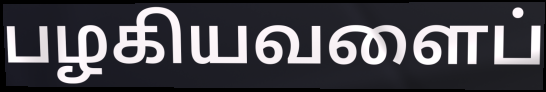
பழகியவளைப்